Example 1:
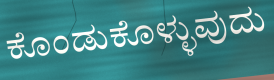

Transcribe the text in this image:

ಕೊಂಡುಕೊಳ್ಳುವುದು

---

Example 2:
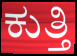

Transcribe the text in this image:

ಕುತ್ತಿ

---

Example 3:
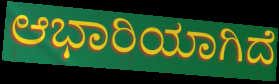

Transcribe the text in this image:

ಆಭಾರಿಯಾಗಿದೆ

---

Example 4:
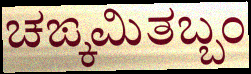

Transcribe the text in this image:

ಚಙ್ಕಮಿತಬ್ಬಂ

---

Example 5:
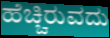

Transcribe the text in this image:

ಹೆಚ್ಚಿರುವದು